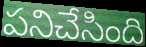
పనిచేసింది